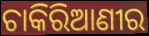
ଚାକିରିଆଣୀର